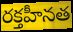
రక్తహీనత